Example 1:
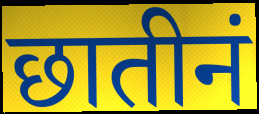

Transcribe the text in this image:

छातीनं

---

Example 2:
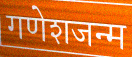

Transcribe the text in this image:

गणेशजन्म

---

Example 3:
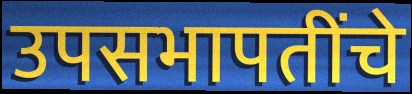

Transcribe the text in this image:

उपसभापतींचे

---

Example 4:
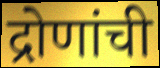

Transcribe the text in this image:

द्रोणांची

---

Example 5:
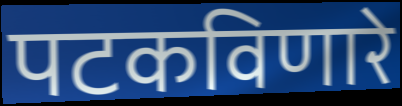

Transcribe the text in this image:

पटकविणारे